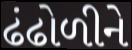
ઢંઢોળીને